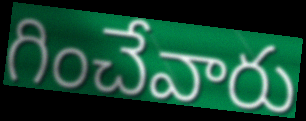
గించేవారు